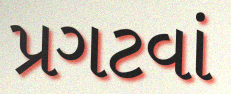
પ્રગટવાં